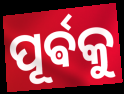
ପୂର୍ଵକୁ